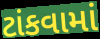
ટાંકવામાં